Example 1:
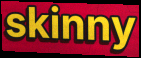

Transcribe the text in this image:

skinny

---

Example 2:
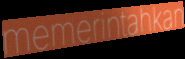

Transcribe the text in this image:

memerintahkan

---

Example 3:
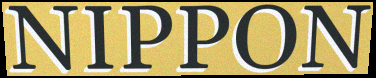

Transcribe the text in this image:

NIPPON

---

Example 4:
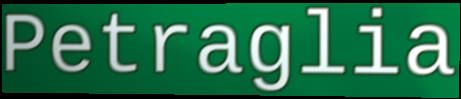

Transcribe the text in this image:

Petraglia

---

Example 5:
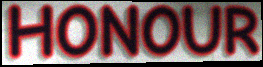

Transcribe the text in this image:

HONOUR